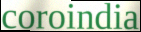
coroindia